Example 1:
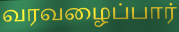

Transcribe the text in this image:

வரவழைப்பார்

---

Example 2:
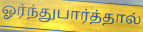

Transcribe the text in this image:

ஓர்ந்துபார்த்தால்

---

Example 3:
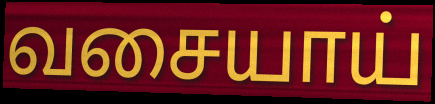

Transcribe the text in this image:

வசையாய்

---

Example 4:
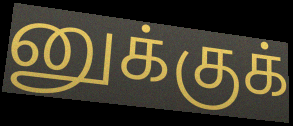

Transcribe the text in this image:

னுக்குக்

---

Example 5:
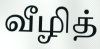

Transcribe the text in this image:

வீழித்